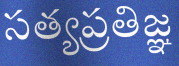
సత్యప్రతిజ్ఞ